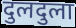
दुलदुला